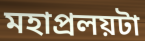
মহাপ্রলয়টা